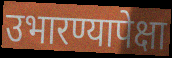
उभारण्यापेक्षा